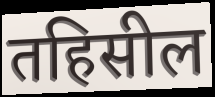
तहिसील